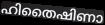
ഹിതൈഷിണാ